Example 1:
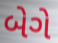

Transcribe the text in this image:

બેગે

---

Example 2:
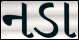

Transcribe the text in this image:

નડા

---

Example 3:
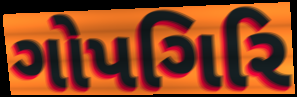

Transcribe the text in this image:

ગોપગિરિ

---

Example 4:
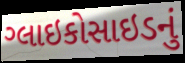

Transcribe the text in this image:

ગ્લાઇકોસાઇડનું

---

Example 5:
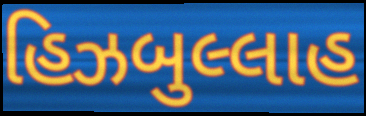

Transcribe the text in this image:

હિઝબુલ્લાહ